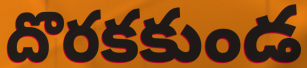
దొరకకుండ